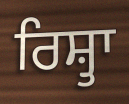
ਰਿਸ਼੍ਤਾ